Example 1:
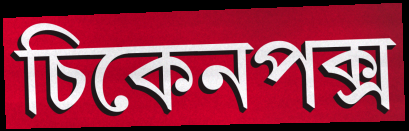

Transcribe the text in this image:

চিকেনপক্স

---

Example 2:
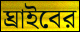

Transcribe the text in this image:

ঘ্রাইবের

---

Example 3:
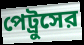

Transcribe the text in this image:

পেট্রুসের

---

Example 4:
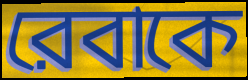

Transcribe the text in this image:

রেবাকে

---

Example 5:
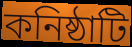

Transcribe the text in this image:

কনিষ্ঠাটি